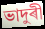
ভাদুৰী